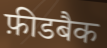
फ़ीडबैक